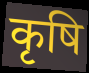
कृषि